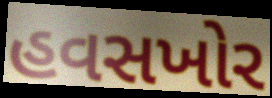
હવસખોર